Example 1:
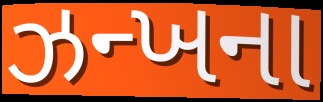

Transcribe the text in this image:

ઝન્ખના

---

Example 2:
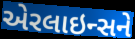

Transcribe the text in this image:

એરલાઇન્સને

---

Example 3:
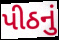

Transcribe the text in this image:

પીઠનું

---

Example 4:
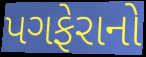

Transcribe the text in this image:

પગફેરાનો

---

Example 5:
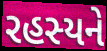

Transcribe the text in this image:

રહસ્યને